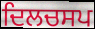
ਦਿਲਚਸਪ